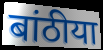
बांठीया